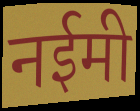
नईमी